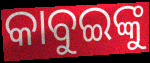
କାବୁଇଙ୍କୁ